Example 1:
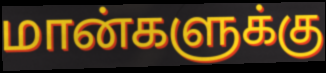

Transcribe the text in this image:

மான்களுக்கு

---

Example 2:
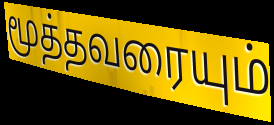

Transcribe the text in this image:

மூத்தவரையும்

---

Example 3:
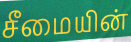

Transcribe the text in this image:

சீமையின்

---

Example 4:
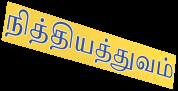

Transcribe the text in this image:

நித்தியத்துவம்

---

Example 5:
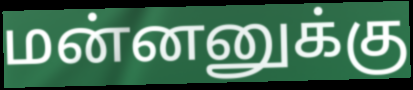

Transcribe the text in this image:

மன்னனுக்கு